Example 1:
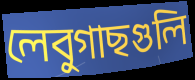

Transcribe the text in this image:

লেবুগাছগুলি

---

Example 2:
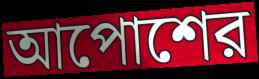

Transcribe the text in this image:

আপোশের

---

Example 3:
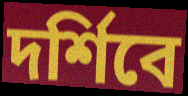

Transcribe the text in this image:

দর্শিবে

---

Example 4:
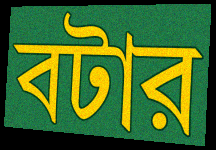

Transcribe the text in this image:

বটার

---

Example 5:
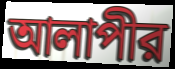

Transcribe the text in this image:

আলাপীর